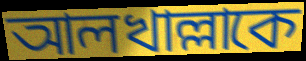
আলখাল্লাকে